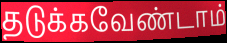
தடுக்கவேண்டாம்